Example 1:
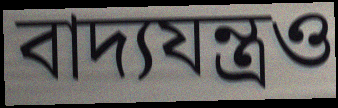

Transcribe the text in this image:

বাদ্যযন্ত্রও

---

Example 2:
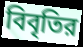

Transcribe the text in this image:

বিবৃতির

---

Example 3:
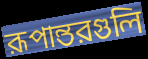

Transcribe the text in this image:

রূপান্তরগুলি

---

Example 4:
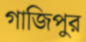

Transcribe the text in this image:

গাজিপুর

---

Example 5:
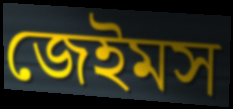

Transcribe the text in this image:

জেইমস